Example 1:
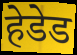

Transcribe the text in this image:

हेडेड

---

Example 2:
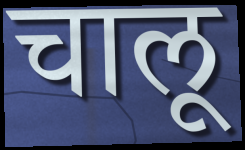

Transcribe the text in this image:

चालू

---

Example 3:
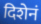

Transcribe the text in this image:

दिशेनं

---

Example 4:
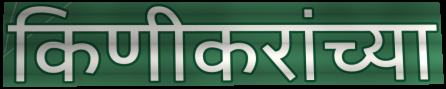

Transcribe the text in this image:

किणीकरांच्या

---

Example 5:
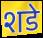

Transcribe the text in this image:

शडे